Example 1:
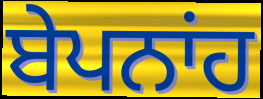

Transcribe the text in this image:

ਬੇਪਨਾਂਹ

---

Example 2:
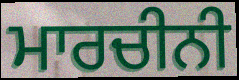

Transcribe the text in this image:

ਮਾਰਚੀਨੀ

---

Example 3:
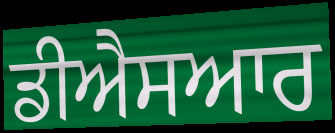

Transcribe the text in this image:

ਡੀਐਸਆਰ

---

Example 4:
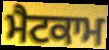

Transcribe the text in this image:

ਮੈਟਕਾਮ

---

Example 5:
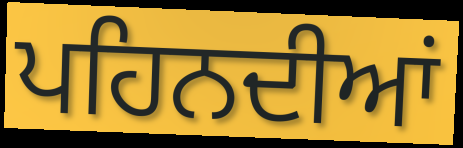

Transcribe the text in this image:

ਪਹਿਨਦੀਆਂ